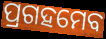
ପ୍ରଗହମେବ